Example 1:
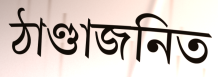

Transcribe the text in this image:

ঠাণ্ডাজনিত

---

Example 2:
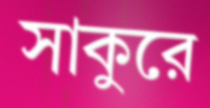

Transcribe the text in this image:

সাকুরে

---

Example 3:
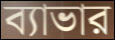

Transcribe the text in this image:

ব্যাভার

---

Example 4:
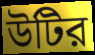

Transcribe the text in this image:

উটির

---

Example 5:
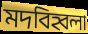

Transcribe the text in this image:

মদবিহ্বলা